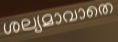
ശല്യമാവാതെ